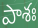
పాశః